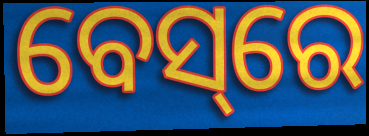
ବେସ୍‌ରେ